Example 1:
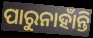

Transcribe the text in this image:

ପାରୁନାହାଁନ୍ତି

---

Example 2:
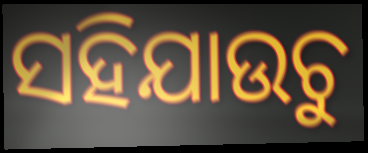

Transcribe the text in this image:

ସହିଯାଉଚୁ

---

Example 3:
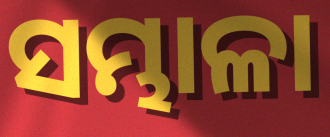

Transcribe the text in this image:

ସମ୍ଭାଳା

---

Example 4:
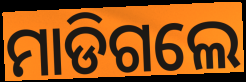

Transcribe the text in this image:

ମାଡିଗଲେ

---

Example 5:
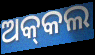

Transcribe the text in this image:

ଅକ୍‍କଲ